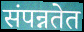
संपन्नतेत